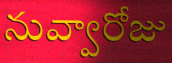
నువ్వారోజు